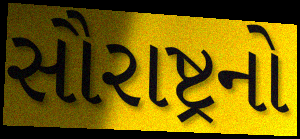
સૌરાષ્ટ્રનો